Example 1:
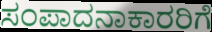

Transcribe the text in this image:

ಸಂಪಾದನಾಕಾರರಿಗೆ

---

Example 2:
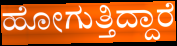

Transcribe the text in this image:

ಹೋಗುತ್ತಿದ್ದಾರೆ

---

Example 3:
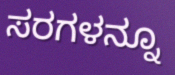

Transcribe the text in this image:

ಸರಗಳನ್ನೂ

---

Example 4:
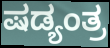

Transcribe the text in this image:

ಷಡ್ಯಂತ್ರ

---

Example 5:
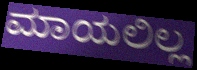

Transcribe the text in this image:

ಮಾಯಲಿಲ್ಲ